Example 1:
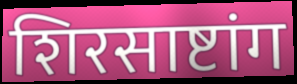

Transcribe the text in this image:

शिरसाष्टांग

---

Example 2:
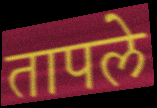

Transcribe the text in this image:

तापले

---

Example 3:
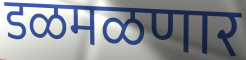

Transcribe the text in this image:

डळमळणार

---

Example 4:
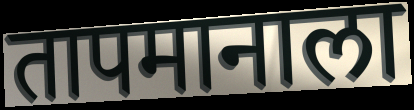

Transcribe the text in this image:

तापमानाला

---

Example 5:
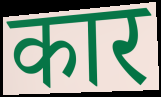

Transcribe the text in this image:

कार